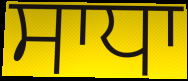
ਸਾਧਾ